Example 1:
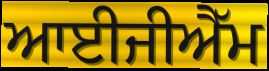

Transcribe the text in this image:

ਆਈਜੀਐੱਮ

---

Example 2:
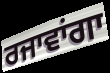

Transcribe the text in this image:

ਰਜਾਵਾਂਗਾ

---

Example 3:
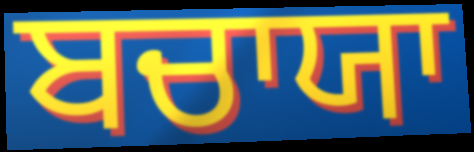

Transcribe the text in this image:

ਬਚਾਯਾ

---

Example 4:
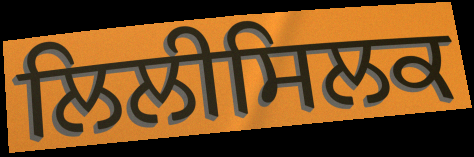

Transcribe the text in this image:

ਲਿਲੀਸਿਲਕ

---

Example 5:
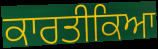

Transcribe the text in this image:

ਕਾਰਤੀਕਿਆ